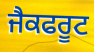
ਜੈਕਫਰੂਟ